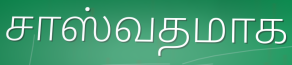
சாஸ்வதமாக